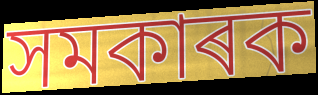
সমকাৰক